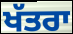
ਖੱਤਰਾ